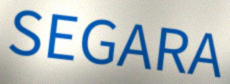
SEGARA